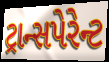
ટ્રાન્સપેરેન્ટ